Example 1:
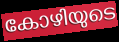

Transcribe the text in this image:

കോഴിയുടെ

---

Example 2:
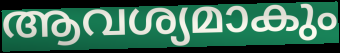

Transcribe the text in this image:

ആവശ്യമാകും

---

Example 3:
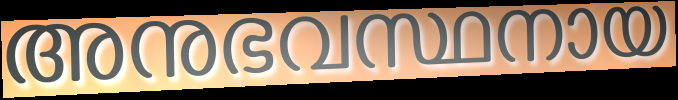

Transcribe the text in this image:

അനുഭവസ്ഥനായ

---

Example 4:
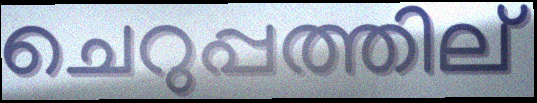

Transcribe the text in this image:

ചെറുപ്പത്തില്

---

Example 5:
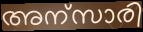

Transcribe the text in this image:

അന്സാരി